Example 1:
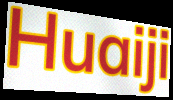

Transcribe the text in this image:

Huaiji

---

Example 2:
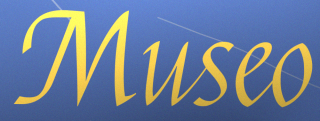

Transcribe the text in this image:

Museo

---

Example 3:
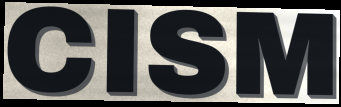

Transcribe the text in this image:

CISM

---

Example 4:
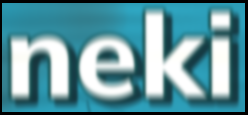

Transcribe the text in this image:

neki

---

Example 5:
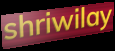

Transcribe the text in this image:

shriwilay